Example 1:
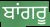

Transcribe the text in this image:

ਬਾਂਗਰੂ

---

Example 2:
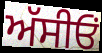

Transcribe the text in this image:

ਅੱਸੀਓਂ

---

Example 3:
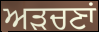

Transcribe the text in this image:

ਅੜਚਣਾਂ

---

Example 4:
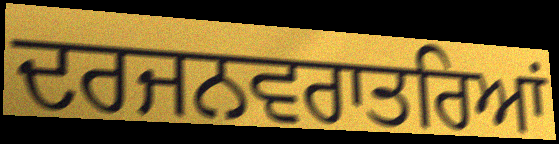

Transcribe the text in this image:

ਦਰਜਨਵਰਾਤਰਿਆਂ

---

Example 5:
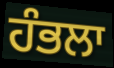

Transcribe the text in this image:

ਹੰਭਲਾ